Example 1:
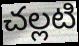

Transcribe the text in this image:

చల్లటి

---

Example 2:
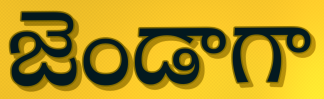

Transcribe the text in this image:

జెండాగా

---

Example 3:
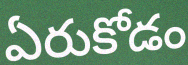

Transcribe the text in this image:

ఏరుకోడం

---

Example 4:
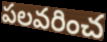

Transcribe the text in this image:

పలవరించ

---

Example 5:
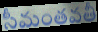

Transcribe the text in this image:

సీమంతవతీ